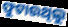
ଫୁଟାଉଥିଲୁ